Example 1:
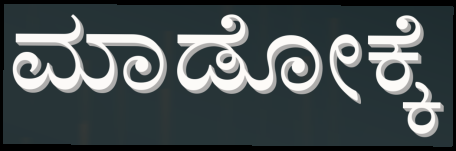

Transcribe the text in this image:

ಮಾಡೋಕ್ಕೆ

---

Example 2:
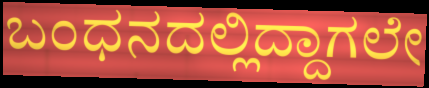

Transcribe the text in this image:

ಬಂಧನದಲ್ಲಿದ್ದಾಗಲೇ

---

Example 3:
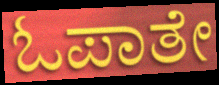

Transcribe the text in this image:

ಓಪಾತೇ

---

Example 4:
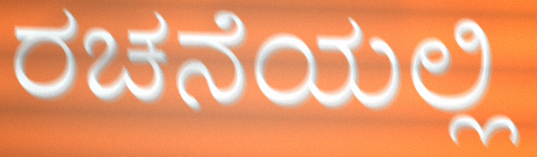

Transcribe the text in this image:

ರಚನೆಯಲ್ಲಿ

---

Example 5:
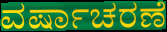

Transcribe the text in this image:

ವರ್ಷಾಚರಣೆ